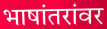
भाषांतरांवर